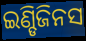
ଇଣ୍ଡିଜିନସ